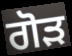
ਗੋੜ